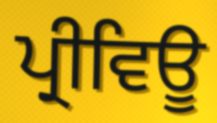
ਪ੍ਰੀਵਿਊ